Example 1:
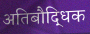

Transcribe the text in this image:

अतिबौद्धिक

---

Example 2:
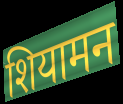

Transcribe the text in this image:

शियामन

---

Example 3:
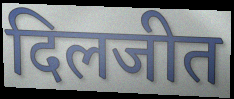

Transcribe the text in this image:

दिलजीत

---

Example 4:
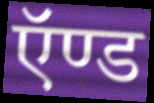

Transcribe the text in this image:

ऍण्ड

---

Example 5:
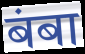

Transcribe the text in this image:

बंबा